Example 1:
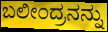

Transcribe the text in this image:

ಬಲೀಂದ್ರನನ್ನು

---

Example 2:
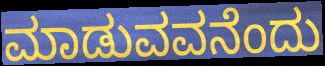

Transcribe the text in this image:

ಮಾಡುವವನೆಂದು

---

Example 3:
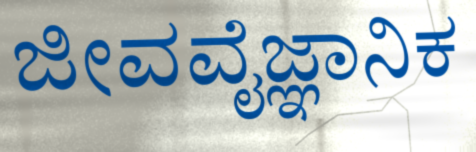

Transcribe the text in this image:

ಜೀವವೈಜ್ಞಾನಿಕ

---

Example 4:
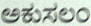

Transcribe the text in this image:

ಅಕುಸಲಂ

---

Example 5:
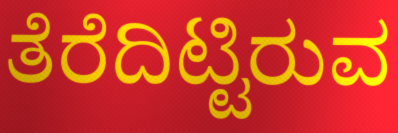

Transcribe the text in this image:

ತೆರೆದಿಟ್ಟಿರುವ